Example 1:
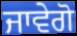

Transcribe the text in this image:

ਜਾਵੇਗੋ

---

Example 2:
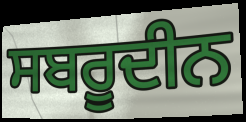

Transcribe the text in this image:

ਸਬਰੂਦੀਨ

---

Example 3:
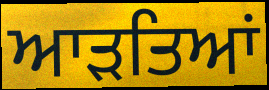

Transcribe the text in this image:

ਆੜਤਿਆਂ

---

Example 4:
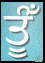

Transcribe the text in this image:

ਤੂੰਁ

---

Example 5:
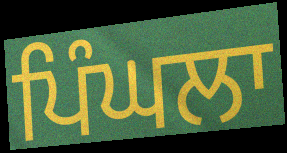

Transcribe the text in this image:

ਪਿੰਘਲਾ